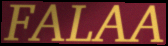
FALAA